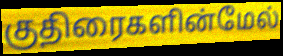
குதிரைகளின்மேல்